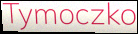
Tymoczko